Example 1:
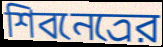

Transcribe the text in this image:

শিবনেত্রের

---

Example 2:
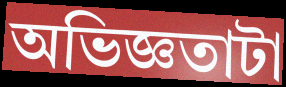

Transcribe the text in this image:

অভিজ্ঞতাটা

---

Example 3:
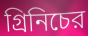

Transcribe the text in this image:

গ্রিনিচের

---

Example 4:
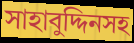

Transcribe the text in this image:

সাহাবুদ্দিনসহ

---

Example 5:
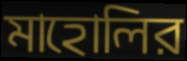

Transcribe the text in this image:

মাহোলির